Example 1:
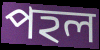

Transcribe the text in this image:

পহল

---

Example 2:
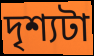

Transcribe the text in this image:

দৃশ্যটা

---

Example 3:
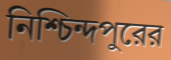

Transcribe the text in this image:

নিশ্চিন্দপুরের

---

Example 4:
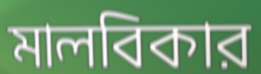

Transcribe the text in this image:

মালবিকার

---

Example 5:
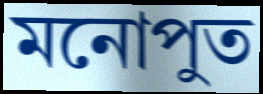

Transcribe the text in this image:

মনোপুত